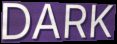
DARK